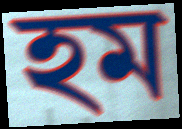
হম